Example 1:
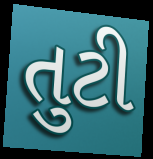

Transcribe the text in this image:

તુટી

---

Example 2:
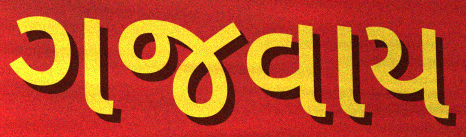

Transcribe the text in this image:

ગજવાય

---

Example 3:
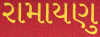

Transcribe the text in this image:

રામાયણુ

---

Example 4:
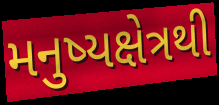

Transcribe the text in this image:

મનુષ્યક્ષેત્રથી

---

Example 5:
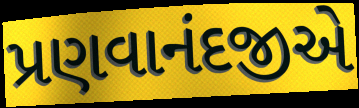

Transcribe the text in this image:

પ્રણવાનંદજીએ